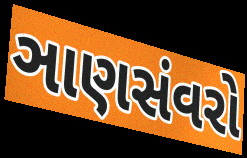
ઞાણસંવરો